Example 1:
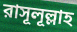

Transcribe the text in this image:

রাসূলূল্লাহ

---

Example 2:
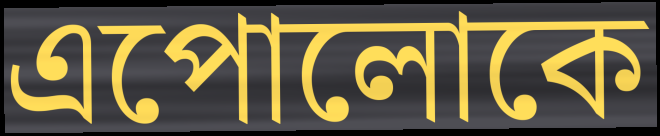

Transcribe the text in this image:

এপোলোকে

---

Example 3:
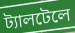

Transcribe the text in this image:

ট্যালটেলে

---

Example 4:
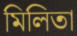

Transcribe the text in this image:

মিলিতা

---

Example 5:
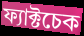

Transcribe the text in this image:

ফ্যাক্টচেক